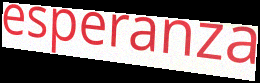
esperanza